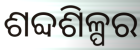
ଶବ୍ଦଶିଳ୍ପର